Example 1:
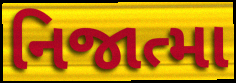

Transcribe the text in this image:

નિજાત્મા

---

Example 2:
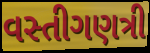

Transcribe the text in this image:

વસ્તીગણત્રી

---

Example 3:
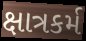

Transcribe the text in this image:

ક્ષાત્રકર્મ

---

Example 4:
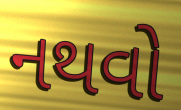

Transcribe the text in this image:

નથવો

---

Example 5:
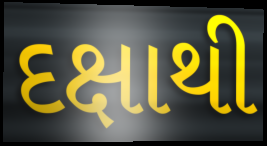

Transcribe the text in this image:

દક્ષાથી